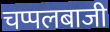
चप्पलबाजी